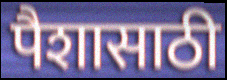
पैशासाठी